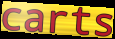
carts